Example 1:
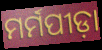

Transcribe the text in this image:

ମର୍ମପୀଡ଼ା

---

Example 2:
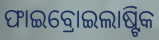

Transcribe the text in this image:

ଫାଇବ୍ରୋଇଲାଷ୍ଟିକ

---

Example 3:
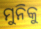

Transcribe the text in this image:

ମୁନିକୁ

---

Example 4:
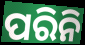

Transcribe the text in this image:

ପରିନି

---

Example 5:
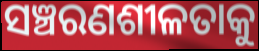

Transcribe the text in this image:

ସଞ୍ଚରଣଶୀଳତାକୁ